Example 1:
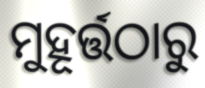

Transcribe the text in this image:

ମୁହୂର୍ତ୍ତଠାରୁ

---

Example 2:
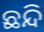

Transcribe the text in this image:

ଛନ୍ଦି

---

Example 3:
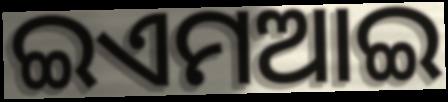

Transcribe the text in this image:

ଇଏମଆଇ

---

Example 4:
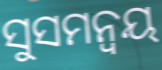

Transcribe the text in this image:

ସୁସମନ୍ୱୟ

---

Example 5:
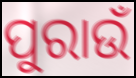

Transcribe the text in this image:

ପୁରାଉଁ